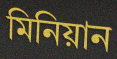
মিনিয়ান